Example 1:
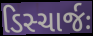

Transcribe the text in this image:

ડિસ્ચાર્જઃ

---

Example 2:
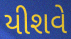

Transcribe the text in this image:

યીશવે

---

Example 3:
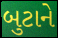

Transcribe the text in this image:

બુટાને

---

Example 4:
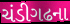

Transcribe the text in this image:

ચંડીગઢના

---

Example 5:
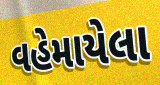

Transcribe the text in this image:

વહેમાયેલા